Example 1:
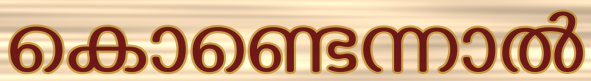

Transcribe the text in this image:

കൊണ്ടെന്നാൽ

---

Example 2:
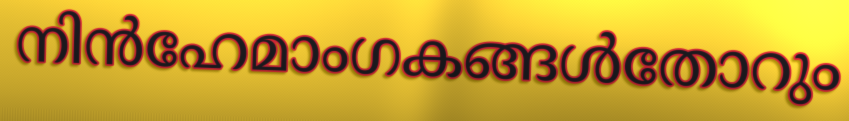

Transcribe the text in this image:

നിൻഹേമാംഗകങ്ങൾതോറും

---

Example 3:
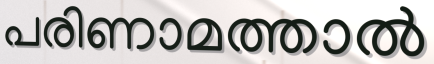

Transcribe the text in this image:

പരിണാമത്താൽ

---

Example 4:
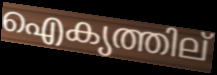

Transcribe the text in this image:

ഐക്യത്തില്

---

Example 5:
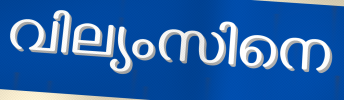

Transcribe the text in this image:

വില്യംസിനെ